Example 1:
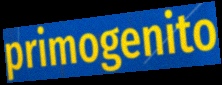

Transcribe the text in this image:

primogenito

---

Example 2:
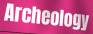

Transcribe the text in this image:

Archeology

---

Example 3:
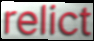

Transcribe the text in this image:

relict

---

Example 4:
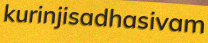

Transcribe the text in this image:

kurinjisadhasivam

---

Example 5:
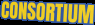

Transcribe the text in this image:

CONSORTIUM